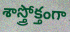
శాస్త్రోక్తంగా